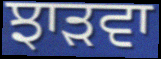
ਝਾੜਵਾ